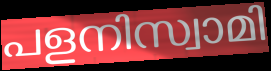
പളനിസ്വാമി